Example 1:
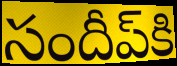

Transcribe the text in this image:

సందీప్‌కి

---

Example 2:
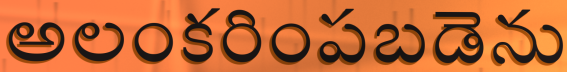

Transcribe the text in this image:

అలంకరింపబడెను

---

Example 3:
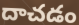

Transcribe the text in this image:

దాచడం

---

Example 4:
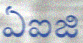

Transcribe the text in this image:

ఏఐజి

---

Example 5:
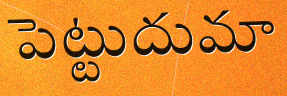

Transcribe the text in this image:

పెట్టుదుమా